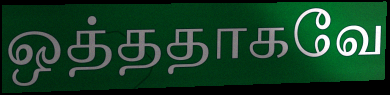
ஒத்ததாகவே